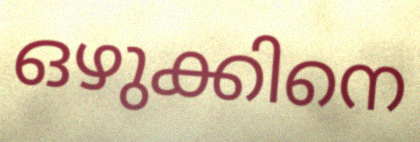
ഒഴുക്കിനെ